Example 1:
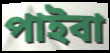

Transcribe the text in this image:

পাইবা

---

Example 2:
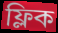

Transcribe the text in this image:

ফ্লিক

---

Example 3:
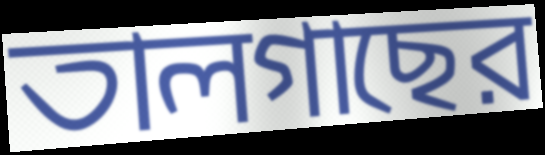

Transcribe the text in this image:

তালগাছের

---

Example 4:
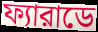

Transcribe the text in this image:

ফ্যারাডে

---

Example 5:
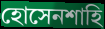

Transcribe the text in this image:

হোসেনশাহি